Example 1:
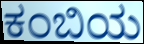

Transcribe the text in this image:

ಕಂಬಿಯ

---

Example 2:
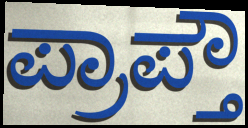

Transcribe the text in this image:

ಪ್ರಾಪ್ತೌ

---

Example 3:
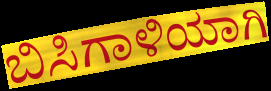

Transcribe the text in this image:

ಬಿಸಿಗಾಳಿಯಾಗಿ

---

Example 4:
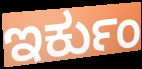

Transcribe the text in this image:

ಇರ್ಕುಂ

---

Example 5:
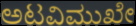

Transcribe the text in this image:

ಅಟವಿಮುಖೇ